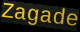
Zagade